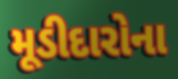
મૂડીદારોના